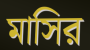
মাসির